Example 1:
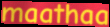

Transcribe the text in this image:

maathaa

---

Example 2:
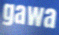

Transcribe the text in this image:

gawa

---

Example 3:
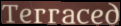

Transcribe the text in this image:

Terraced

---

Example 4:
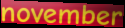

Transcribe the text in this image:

november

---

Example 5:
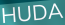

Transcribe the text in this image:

HUDA